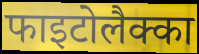
फाइटोलैक्का